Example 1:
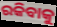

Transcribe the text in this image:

ରକିବାକୁ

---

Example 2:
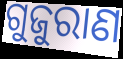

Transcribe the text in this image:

ଗୁଜୁରାଣ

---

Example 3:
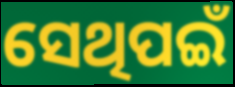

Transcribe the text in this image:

ସେଥିପଇଁ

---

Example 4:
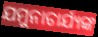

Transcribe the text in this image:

ଯମୁନାଚାର୍ଯ୍ୟଙ୍କ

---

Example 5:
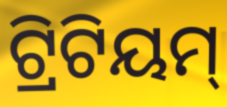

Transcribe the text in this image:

ଟ୍ରିଟିୟମ୍